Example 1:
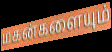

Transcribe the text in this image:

மகன்களையும்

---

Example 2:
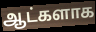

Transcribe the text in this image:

ஆட்களாக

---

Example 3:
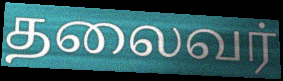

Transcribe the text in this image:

தலைவர்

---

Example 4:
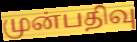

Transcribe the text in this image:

முன்பதிவு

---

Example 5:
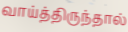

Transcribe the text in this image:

வாய்த்திருந்தால்